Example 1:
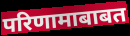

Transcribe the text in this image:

परिणामाबाबत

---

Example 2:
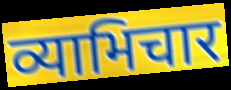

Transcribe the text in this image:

व्याभिचार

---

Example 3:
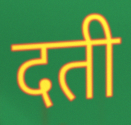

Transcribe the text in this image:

दती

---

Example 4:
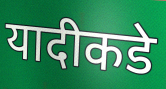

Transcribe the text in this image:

यादीकडे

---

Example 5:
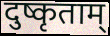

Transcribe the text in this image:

दुष्कृताम्